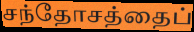
சந்தோசத்தைப்